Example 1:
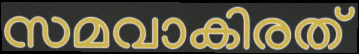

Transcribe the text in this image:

സമവാകിരത്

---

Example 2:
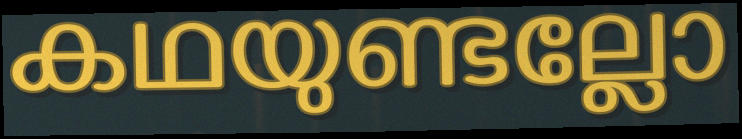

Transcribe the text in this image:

കഥയുണ്ടല്ലോ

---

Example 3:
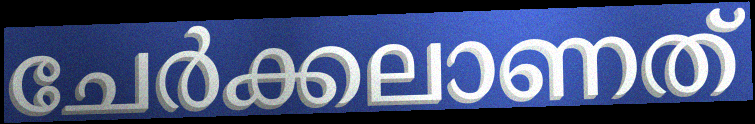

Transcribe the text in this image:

ചേർക്കലാണത്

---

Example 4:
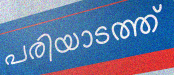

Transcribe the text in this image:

പരിയാടത്ത്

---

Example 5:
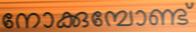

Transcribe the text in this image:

നോക്കുമ്പോണ്ട്